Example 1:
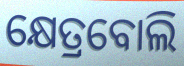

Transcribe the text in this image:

କ୍ଷେତ୍ରବୋଲି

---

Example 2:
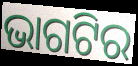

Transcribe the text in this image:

ଭାଗଟିର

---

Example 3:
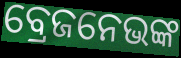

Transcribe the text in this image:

ବ୍ରେଜନେଭଙ୍କ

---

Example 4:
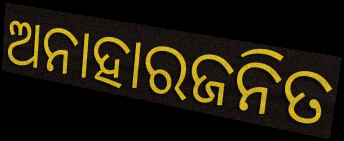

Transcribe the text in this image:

ଅନାହାରଜନିତ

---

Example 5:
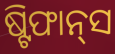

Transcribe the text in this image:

ଷ୍ଟିଫାନ୍‍ସ